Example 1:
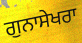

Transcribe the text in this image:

ਗੁਨਾਸੇਖਰਾ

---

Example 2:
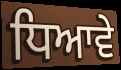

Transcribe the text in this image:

ਧਿਆਵੇ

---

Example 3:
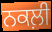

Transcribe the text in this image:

ਨਕਲ਼ੀ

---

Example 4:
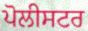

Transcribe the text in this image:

ਪੋਲੀਸਟਰ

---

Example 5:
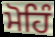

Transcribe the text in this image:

ਮੋਹਿੰ